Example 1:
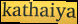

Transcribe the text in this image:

kathaiya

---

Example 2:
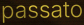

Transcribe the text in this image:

passato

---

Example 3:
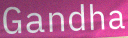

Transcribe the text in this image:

Gandha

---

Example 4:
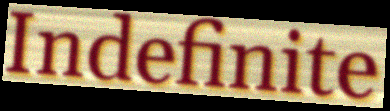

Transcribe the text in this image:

Indefinite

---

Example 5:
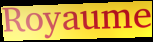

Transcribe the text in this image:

Royaume